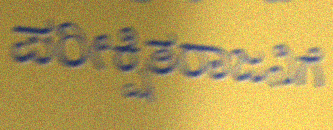
ಪರೀಕ್ಷಿತರಾಜನಿಗೆ